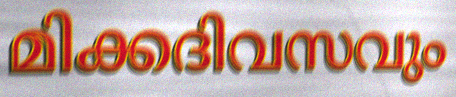
മിക്കദിവസവും